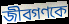
জীবগণকে